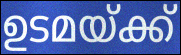
ഉടമയ്ക്ക്